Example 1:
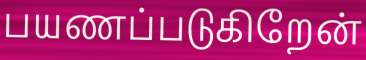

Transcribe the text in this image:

பயணப்படுகிறேன்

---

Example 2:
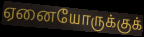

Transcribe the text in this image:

ஏனையோருக்குக்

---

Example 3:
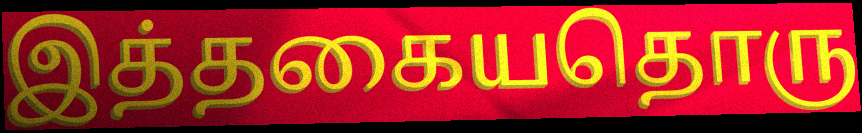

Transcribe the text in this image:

இத்தகையதொரு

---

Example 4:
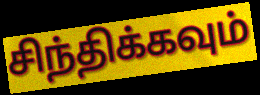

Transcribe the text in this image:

சிந்திக்கவும்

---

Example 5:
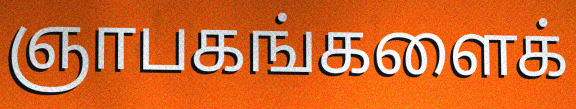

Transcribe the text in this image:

ஞாபகங்களைக்